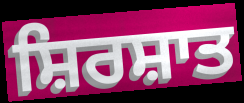
ਸ਼ਿਰਸ਼ਾਤ